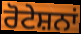
ਰੋਟੇਸ਼ਨਾਂ